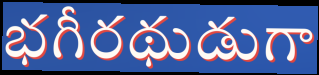
భగీరథుడుగా